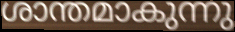
ശാന്തമാകുന്നു